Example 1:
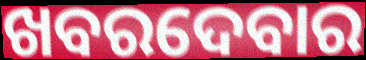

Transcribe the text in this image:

ଖବରଦେବାର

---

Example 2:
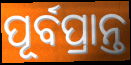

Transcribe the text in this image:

ପୂର୍ବପ୍ରାନ୍ତ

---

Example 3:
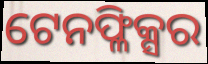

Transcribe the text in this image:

ଟେନଫ୍ଳିକ୍ସର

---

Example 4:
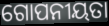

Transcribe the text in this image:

ଗୋପନୀୟତା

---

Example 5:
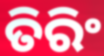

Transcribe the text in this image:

ତିରିଂ